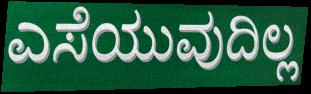
ಎಸೆಯುವುದಿಲ್ಲ